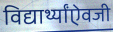
विद्यार्थ्यांऐवजी